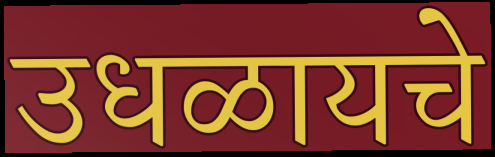
उधळायचे